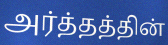
அர்த்தத்தின்